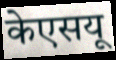
केएसयू